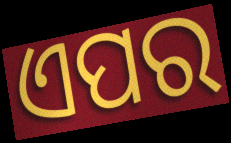
ଏପର